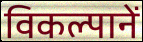
विकल्पानें